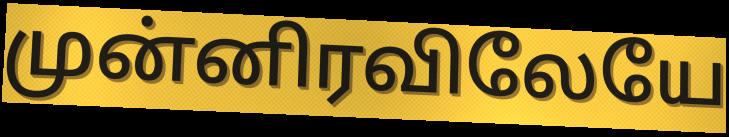
முன்னிரவிலேயே